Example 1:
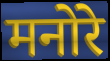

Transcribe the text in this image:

मनोरे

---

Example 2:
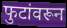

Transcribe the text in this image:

फुटांवरून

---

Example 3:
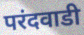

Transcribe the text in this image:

परंदवाडी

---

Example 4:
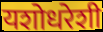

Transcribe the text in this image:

यशोधरेशी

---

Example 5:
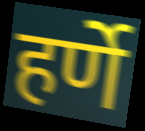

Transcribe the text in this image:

हर्णे